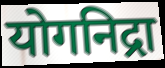
योगनिद्रा